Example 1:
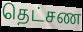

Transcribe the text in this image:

தெட்சண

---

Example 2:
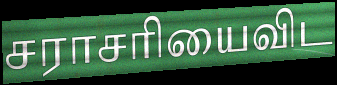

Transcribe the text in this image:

சராசரியைவிட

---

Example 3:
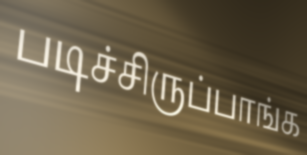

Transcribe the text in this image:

படிச்சிருப்பாங்க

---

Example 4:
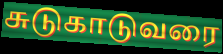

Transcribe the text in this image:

சுடுகாடுவரை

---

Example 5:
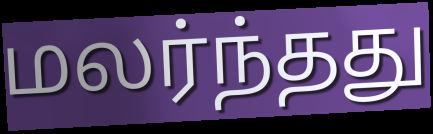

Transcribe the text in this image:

மலர்ந்தது